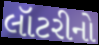
લૉટરીનો